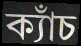
ক্যাঁচ